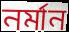
নৰ্মান